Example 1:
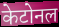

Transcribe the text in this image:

केटोनल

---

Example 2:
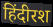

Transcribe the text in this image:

हिंदीरश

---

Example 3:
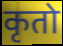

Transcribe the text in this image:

कृतो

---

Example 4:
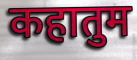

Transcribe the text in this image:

कहातुम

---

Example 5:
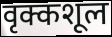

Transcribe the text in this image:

वृक्कशूल